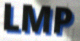
LMP